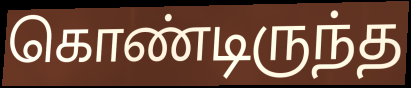
கொண்டிருந்த